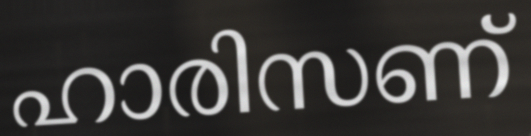
ഹാരിസണ്